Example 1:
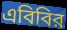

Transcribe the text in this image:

এবিবির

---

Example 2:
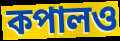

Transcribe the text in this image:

কপালও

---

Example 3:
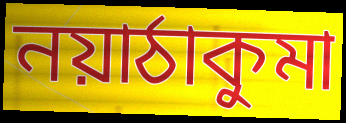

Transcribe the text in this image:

নয়াঠাকুমা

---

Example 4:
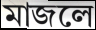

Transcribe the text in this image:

মাজলে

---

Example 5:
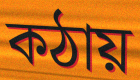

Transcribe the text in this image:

কঠায়